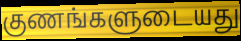
குணங்களுடையது